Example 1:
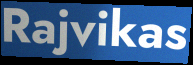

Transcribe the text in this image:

Rajvikas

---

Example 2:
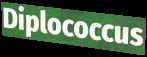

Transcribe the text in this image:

Diplococcus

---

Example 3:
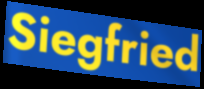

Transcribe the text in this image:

Siegfried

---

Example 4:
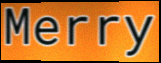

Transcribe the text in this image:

Merry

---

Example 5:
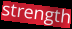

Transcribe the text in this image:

strength